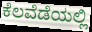
ಕೆಲವೆಡೆಯಲ್ಲಿ